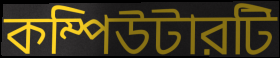
কম্পিউটারটি